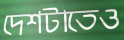
দেশটাতেও